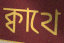
ক্বাথে